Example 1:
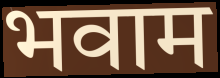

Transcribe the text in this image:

भवाम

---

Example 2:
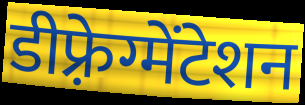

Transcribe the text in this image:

डीफ़्रेग्मेंटेशन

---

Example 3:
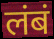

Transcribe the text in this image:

लंबं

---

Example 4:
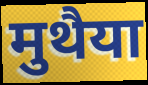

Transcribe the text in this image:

मुथैया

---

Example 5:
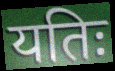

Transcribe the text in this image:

यतिः